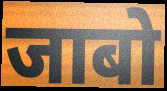
जाबो